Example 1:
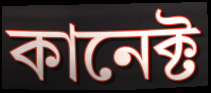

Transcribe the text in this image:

কানেক্ট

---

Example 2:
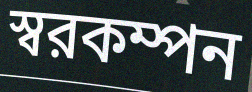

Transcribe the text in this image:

স্বরকম্পন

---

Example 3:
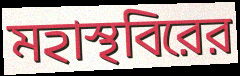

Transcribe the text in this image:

মহাস্থবিরের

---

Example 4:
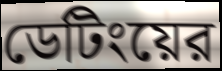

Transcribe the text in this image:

ডেটিংয়ের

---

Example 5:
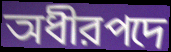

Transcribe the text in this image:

অধীরপদে